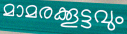
മാമരക്കൂട്ടവും